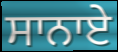
ਸਾਨਾਏ